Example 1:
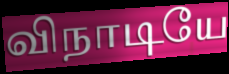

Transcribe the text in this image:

விநாடியே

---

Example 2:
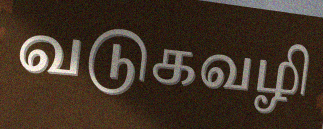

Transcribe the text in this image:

வடுகவழி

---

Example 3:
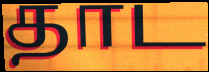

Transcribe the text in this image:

தாட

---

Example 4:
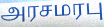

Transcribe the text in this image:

அரசமரபு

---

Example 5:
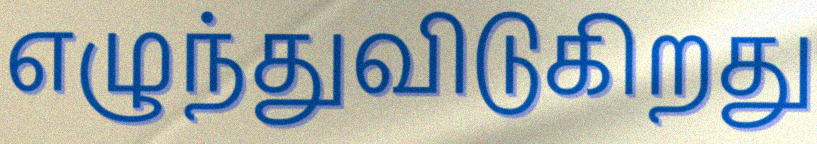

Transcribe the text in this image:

எழுந்துவிடுகிறது